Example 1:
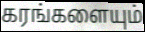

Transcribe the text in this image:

கரங்களையும்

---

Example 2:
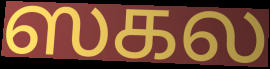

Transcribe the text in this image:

ஸகல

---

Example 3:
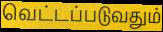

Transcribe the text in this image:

வெட்டப்படுவதும்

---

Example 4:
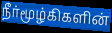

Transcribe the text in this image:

நீர்மூழ்கிகளின்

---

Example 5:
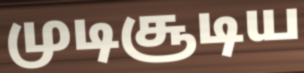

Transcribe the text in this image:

முடிசூடிய